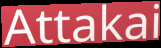
Attakai